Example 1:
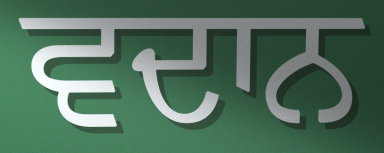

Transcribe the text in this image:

ਵਦਾਨ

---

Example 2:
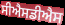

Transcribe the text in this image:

ਸੀਐਸਡੀਐਸ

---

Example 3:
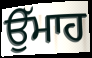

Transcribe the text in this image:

ਉੱਮਾਹ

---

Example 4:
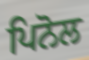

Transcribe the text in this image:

ਪਿਨੋਲ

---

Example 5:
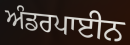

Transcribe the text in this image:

ਅੰਡਰਪਾਈਨ